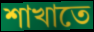
শাখাতে